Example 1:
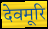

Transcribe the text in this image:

देवमूरि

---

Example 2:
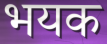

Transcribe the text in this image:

भयक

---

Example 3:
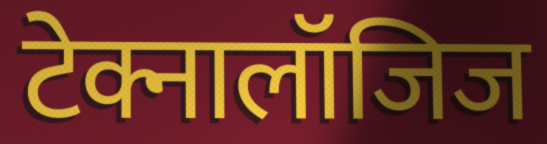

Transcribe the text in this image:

टेक्नालॉजिज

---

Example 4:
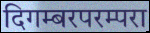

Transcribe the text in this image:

दिगम्बरपरम्परा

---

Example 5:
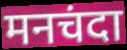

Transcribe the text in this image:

मनचंदा